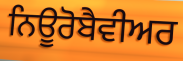
ਨਿਊਰੋਬੈਵੀਅਰ